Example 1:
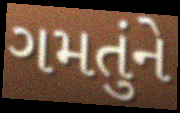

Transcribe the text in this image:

ગમતુંને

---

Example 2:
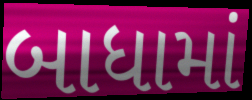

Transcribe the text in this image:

બાધામાં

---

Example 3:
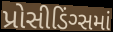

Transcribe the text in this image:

પ્રોસીડિંગ્સમાં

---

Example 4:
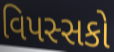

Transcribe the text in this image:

વિપસ્સકો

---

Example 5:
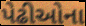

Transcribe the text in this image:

પેઢીઓના